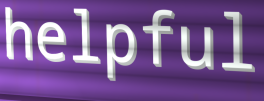
helpful